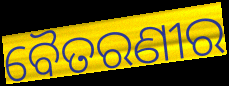
ବୈତରଣୀର